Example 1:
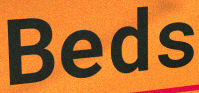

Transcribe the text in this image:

Beds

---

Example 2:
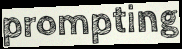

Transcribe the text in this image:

prompting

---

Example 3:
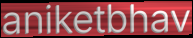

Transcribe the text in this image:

aniketbhav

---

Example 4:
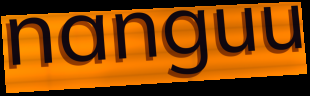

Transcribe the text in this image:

nanguu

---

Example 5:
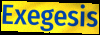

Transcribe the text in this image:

Exegesis